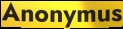
Anonymus